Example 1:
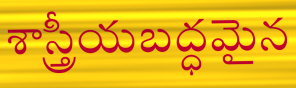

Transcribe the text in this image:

శాస్త్రీయబద్ధమైన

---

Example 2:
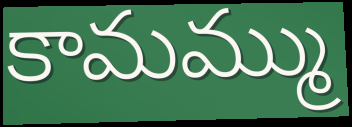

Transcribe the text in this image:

కామమ్ము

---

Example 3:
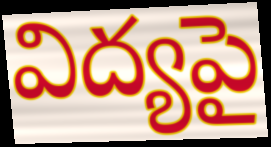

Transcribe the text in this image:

విద్యపై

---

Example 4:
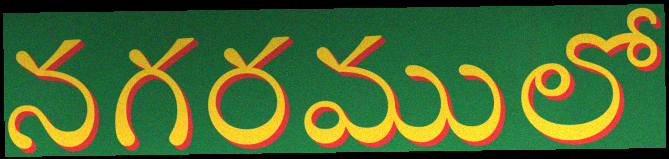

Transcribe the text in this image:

నగరములో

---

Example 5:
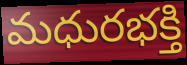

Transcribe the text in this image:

మధురభక్తి